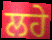
ਲਹੇ